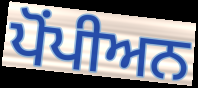
ਪੋਂਪੀਅਨ